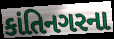
કાંતિનગરના